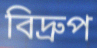
বিদ্ৰুপ